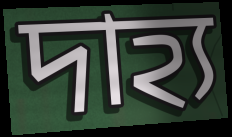
দাহ্য